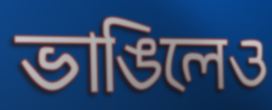
ভাঙিলেও